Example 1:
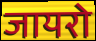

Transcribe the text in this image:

जायरो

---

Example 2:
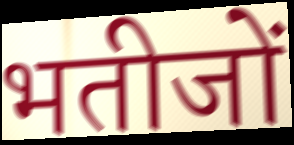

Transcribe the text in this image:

भतीजों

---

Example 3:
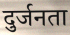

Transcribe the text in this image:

दुर्जनता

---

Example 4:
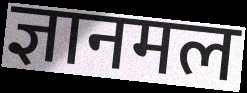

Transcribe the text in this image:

ज्ञानमल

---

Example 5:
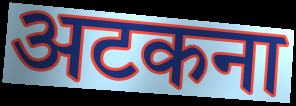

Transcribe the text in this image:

अटकना